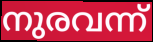
നുരവന്ന്